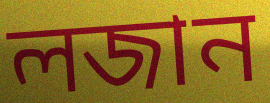
লজান